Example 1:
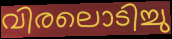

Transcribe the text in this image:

വിരലൊടിച്ചു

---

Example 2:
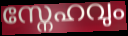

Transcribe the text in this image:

സ്നേഹവും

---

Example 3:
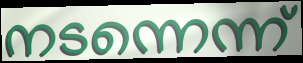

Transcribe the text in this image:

നടന്നെന്ന്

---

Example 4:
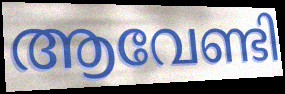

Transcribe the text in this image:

ആവേണ്ടി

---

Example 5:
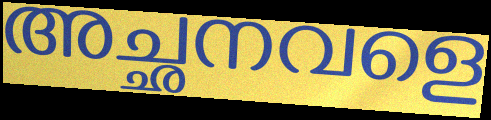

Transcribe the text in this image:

അച്ഛനവളെ